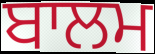
ਬਾਲਮ